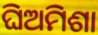
ଘିଅମିଶା